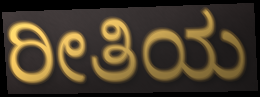
ರೀತಿಯ